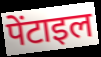
पेंटाइल